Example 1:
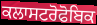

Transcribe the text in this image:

ਕਲਾਸਟਰੋਫੋਬਿਕ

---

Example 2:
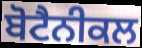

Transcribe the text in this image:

ਬੋਟੈਨੀਕਲ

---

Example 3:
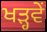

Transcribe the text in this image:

ਖੜ੍ਹਵੇਂ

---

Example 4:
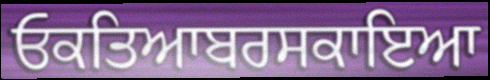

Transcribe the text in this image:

ਓਕਤਿਆਬਰਸਕਾਇਆ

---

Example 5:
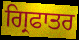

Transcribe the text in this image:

ਗ੍ਰਿਫਾਤਰ